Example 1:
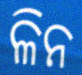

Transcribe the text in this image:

ଳିନ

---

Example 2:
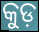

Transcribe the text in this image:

କୁଡ଼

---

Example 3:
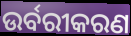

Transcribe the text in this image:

ଉର୍ବରୀକରଣ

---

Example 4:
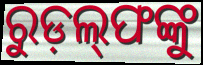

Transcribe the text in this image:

ରୁଡ଼ଲ୍‍ଫଙ୍କୁ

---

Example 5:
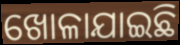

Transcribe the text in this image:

ଖୋଳାଯାଇଛି